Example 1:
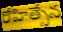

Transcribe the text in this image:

రోహిత్సేన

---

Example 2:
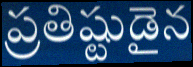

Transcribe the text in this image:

ప్రతిష్టుడైన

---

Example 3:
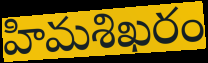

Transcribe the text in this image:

హిమశిఖరం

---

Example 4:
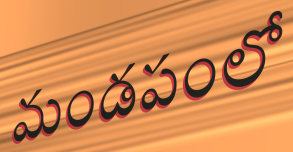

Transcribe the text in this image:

మండపంలో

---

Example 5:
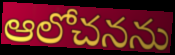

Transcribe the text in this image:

ఆలోచనను